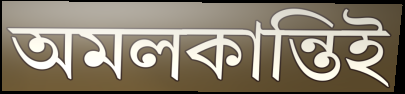
অমলকান্তিই